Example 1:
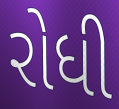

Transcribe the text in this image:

રોધી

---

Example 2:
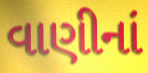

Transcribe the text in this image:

વાણીનાં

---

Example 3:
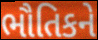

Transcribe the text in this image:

ભૌતિકને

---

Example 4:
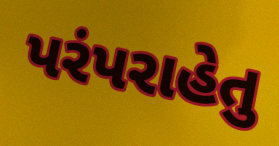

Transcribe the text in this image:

પરંપરાહેતુ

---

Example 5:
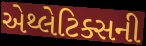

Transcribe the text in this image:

એથ્લેટિક્સની